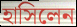
হাসিলেন